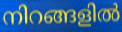
നിറങ്ങളിൽ